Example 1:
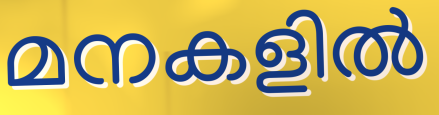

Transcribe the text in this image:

മനകളിൽ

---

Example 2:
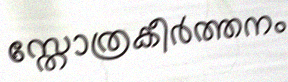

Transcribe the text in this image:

സ്തോത്രകീർത്തനം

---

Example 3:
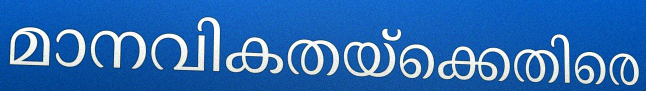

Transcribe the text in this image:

മാനവികതയ്ക്കെതിരെ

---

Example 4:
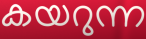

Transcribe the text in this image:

കയറുന്ന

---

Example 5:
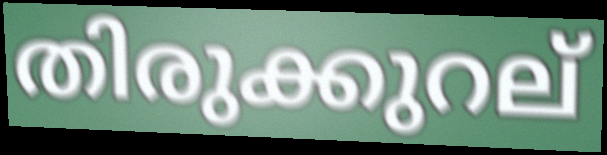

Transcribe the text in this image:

തിരുക്കുറല്